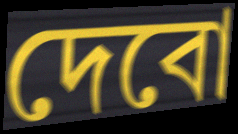
দেবো